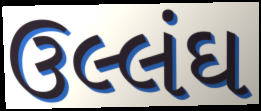
ઉલ્લંઘ